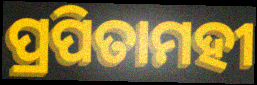
ପ୍ରପିତାମହୀ